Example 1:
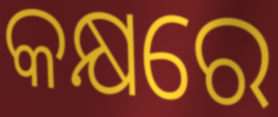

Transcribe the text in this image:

କକ୍ଷରେ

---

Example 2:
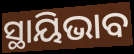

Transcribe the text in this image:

ସ୍ଥାୟିଭାବ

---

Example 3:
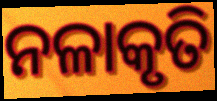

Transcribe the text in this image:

ନଳାକୃତି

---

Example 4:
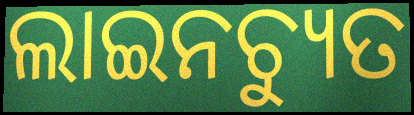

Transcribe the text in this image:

ଲାଇନଚ୍ୟୁତ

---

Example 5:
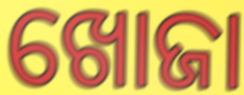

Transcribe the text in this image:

ଖୋଜା